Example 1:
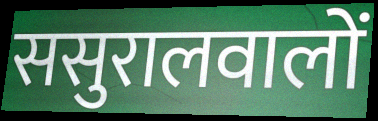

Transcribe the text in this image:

ससुरालवालों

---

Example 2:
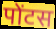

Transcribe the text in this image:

पोंटस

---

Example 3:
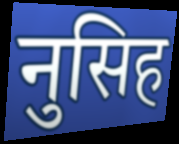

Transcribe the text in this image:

नुसिह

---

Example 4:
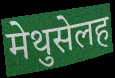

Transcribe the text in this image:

मेथुसेलह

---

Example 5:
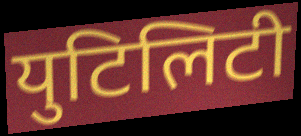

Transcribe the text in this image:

युटिलिटी